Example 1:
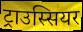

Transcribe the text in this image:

ट्राउस्सियर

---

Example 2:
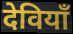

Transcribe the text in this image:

देवियाँ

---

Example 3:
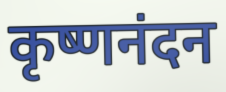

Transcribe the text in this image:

कृष्णनंदन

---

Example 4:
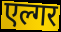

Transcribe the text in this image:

एल्गर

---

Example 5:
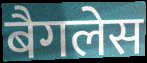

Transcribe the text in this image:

बैगलेस